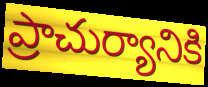
ప్రాచుర్యానికి